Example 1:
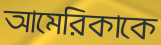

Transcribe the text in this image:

আমেরিকাকে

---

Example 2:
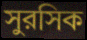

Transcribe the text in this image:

সুরসিক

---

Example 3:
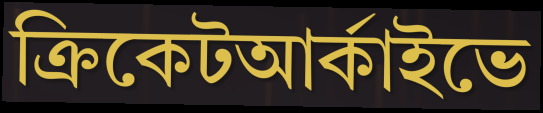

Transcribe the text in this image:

ক্রিকেটআর্কাইভে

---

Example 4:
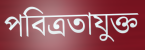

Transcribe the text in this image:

পবিত্রতাযুক্ত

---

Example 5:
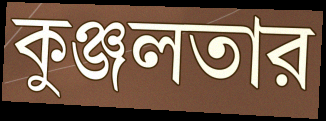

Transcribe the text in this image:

কুঞ্জলতার